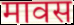
मावस